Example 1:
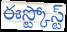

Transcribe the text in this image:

ఈస్ట్కోస్ట్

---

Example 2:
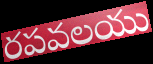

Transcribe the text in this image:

రపవలయు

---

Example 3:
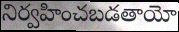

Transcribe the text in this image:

నిర్వహించబడతాయో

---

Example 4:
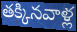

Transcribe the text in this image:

తక్కినవాళ్ల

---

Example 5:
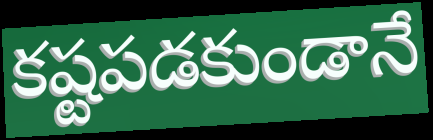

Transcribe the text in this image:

కష్టపడకుండానే